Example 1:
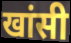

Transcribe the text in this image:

खांसी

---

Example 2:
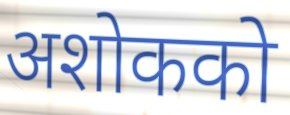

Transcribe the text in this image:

अशोकको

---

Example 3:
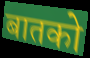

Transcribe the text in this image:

बातको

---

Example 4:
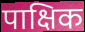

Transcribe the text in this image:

पाक्षिक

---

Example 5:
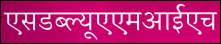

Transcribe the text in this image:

एसडब्ल्यूएएमआईएच